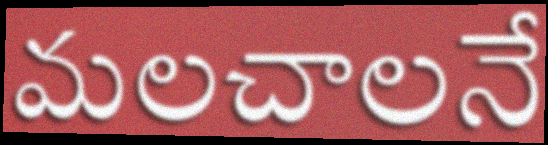
మలచాలనే